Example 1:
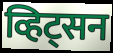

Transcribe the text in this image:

व्हिट्सन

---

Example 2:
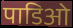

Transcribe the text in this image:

पाडिओ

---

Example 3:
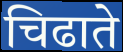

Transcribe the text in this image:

चिढाते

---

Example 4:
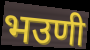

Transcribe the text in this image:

भउणी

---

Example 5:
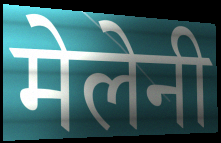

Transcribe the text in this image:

मेलेनी